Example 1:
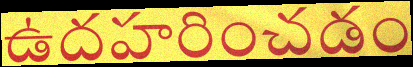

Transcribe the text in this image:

ఉదహరించడం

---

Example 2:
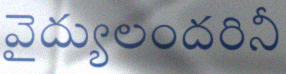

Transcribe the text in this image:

వైద్యులందరినీ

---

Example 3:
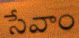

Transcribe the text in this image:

సేవాం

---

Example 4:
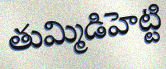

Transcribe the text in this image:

తుమ్మిడిహెట్టి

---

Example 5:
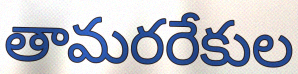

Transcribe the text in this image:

తామరరేకుల